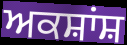
ਅਕਸ਼ਾਂਸ਼